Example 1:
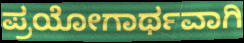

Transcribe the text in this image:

ಪ್ರಯೋಗಾರ್ಥವಾಗಿ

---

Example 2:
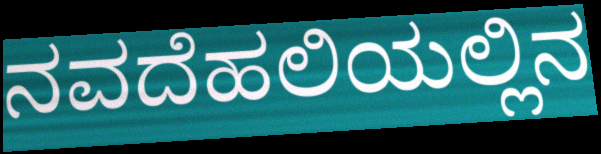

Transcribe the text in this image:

ನವದೆಹಲಿಯಲ್ಲಿನ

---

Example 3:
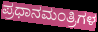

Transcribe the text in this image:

ಪ್ರಧಾನಮಂತ್ರಿಗಳ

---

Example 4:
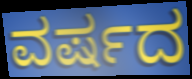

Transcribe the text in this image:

ವರ್ಷದ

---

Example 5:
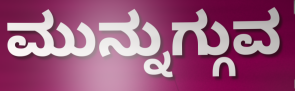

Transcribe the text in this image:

ಮುನ್ನುಗ್ಗುವ